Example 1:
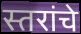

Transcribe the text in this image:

स्तरांचे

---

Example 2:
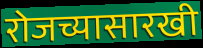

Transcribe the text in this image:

रोजच्यासारखी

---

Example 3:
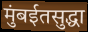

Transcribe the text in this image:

मुंबईतसुद्धा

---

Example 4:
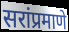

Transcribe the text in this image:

सरांप्रमाणे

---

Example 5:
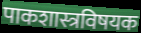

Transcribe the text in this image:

पाकशास्त्रविषयक